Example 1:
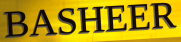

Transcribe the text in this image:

BASHEER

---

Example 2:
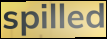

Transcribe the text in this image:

spilled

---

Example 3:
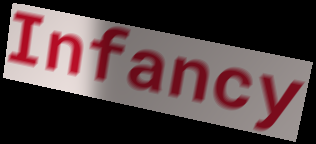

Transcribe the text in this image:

Infancy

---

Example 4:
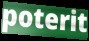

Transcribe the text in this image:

poterit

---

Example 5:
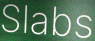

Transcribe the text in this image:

Slabs